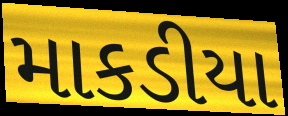
માકડીયા